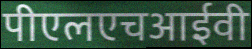
पीएलएचआईवी